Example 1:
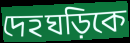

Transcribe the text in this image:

দেহঘড়িকে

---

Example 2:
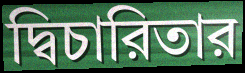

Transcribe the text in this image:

দ্বিচারিতার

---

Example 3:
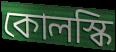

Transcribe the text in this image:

কোলস্কি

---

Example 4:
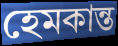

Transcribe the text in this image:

হেমকান্ত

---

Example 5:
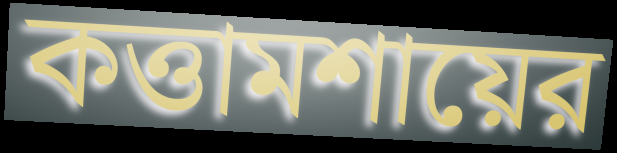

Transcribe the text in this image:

কত্তামশায়ের